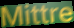
Mittre